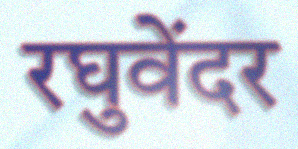
रघुवेंदर